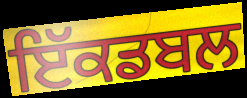
ਇੱਕਡਬਲ